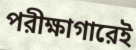
পরীক্ষাগারেই